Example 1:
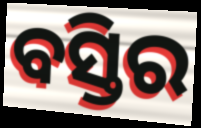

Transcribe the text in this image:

ବସ୍ତିର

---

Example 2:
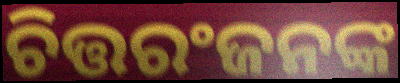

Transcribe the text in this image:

ଚିତ୍ତରଂଜନଙ୍କ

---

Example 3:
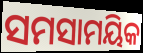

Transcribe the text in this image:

ସମସାମୟିକ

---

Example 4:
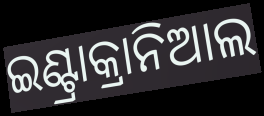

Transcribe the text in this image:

ଇଣ୍ଟ୍ରାକ୍ରାନିଆଲ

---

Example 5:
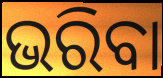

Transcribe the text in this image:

ଭରିବା